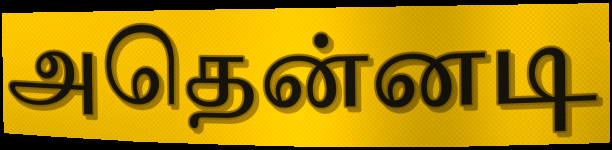
அதென்னடி